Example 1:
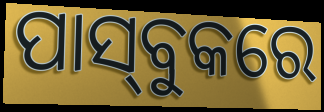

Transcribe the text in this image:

ପାସ୍‌ବୁକରେ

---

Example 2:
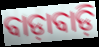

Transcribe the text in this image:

ବାଡ଼ାବାଡ଼ି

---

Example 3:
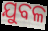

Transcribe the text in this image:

ଯୁବଳ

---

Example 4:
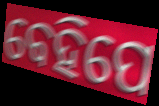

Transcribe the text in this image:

ବେହିପେ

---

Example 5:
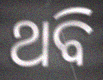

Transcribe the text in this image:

ଥବି